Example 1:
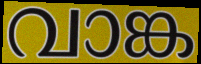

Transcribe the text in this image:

വാങ്ക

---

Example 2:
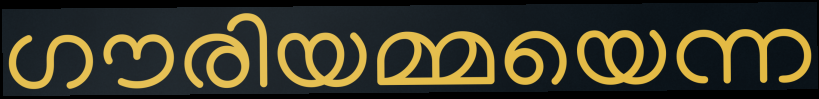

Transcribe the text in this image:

ഗൗരിയമ്മയെന്ന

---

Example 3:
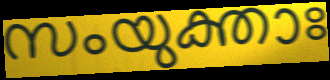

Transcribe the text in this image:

സംയുക്താഃ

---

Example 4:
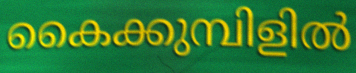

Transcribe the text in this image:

കൈക്കുമ്പിളിൽ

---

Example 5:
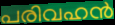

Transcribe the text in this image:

പരിവഹൻ